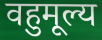
वहुमूल्य